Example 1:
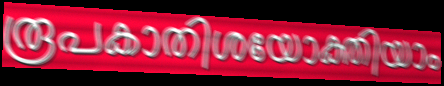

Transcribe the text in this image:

രൂപകാതിശയോക്തിയാം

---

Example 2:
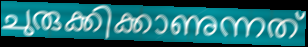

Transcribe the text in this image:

ചുരുക്കിക്കാണുന്നത്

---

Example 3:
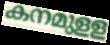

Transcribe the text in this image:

കനമുളള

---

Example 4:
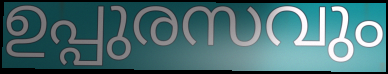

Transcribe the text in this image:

ഉപ്പുരസവും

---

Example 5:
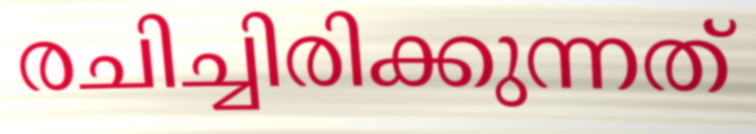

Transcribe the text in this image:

രചിച്ചിരിക്കുന്നത്